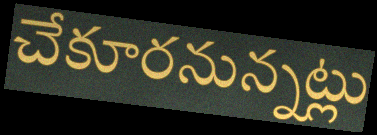
చేకూరనున్నట్లు